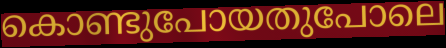
കൊണ്ടുപോയതുപോലെ